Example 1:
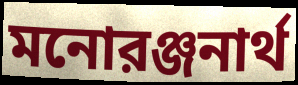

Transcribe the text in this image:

মনোরঞ্জনার্থ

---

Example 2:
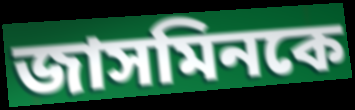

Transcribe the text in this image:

জাসমিনকে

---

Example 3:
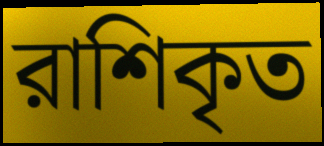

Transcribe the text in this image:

রাশিকৃত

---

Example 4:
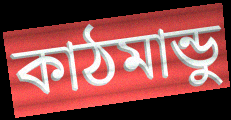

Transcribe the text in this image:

কাঠমান্ডু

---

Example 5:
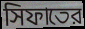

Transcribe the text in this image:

সিফাতের